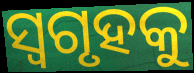
ସ୍ୱଗୃହକୁ